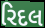
રિદલ